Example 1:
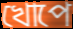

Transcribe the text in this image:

খোপে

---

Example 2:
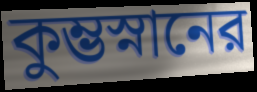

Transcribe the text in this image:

কুম্ভস্নানের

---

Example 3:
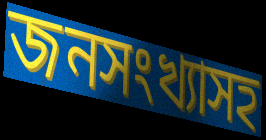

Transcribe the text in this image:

জনসংখ্যাসহ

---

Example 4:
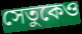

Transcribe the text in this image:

সেতুকেও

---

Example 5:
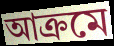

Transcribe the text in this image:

আক্রমে